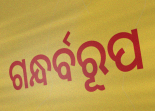
ଗନ୍ଧର୍ବରୂପ